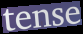
tense